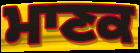
ਮਾਣਕ